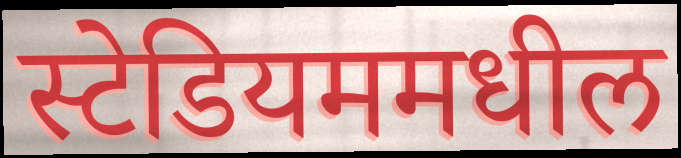
स्टेडियममधील